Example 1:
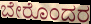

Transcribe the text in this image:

ಬೇರೊಂದರ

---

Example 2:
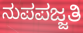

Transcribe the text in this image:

ನುಪಪಜ್ಜತಿ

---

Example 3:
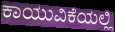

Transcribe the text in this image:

ಕಾಯುವಿಕೆಯಲ್ಲಿ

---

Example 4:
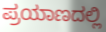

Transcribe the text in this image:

ಪ್ರಯಾಣದಲ್ಲಿ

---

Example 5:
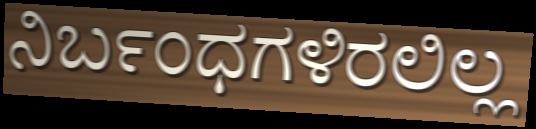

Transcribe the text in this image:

ನಿರ್ಬಂಧಗಳಿರಲಿಲ್ಲ